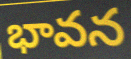
భావన